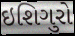
ઇશિગુરો